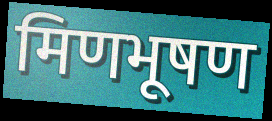
मिणभूषण